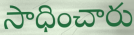
సాధించారు